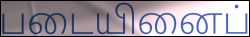
படையினைப்